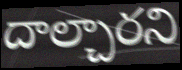
దాల్చారని